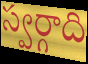
స్వర్గాది